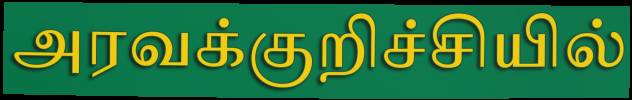
அரவக்குறிச்சியில்